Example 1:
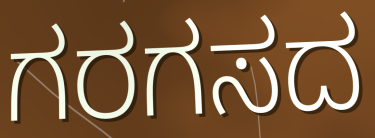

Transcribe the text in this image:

ಗರಗಸದ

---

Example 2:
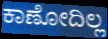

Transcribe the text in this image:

ಕಾಣೋದಿಲ್ಲ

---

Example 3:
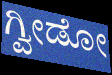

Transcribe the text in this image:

ಗ್ವೀಡೋ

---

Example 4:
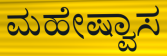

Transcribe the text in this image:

ಮಹೇಷ್ವಾಸ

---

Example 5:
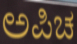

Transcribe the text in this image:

ಅಪಿಚ